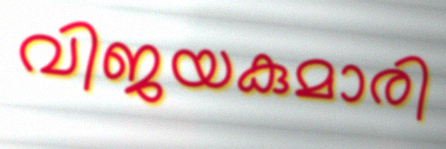
വിജയകുമാരി